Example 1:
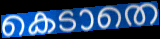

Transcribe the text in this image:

കെടാതെ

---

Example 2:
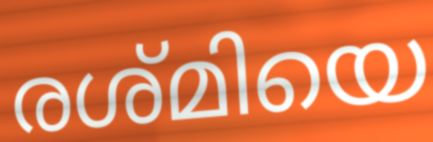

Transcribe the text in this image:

രശ്മിയെ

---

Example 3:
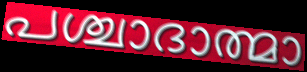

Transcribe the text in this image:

പശ്ചാദാത്മാ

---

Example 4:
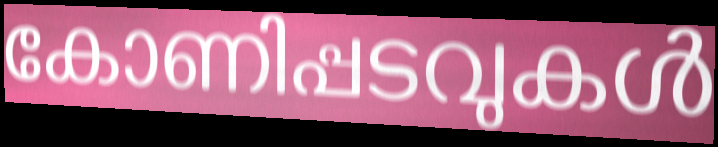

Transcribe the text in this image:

കോണിപ്പടവുകൾ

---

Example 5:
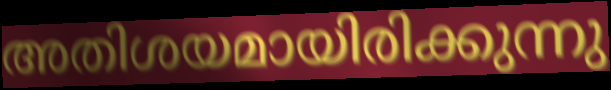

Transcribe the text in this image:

അതിശയമായിരിക്കുന്നു